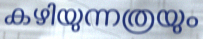
കഴിയുന്നത്രയും